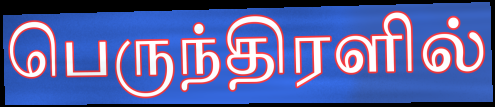
பெருந்திரளில்